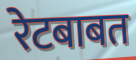
रेटबाबत